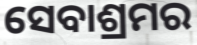
ସେବାଶ୍ରମର